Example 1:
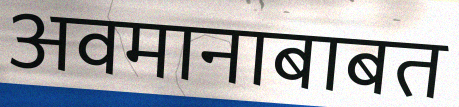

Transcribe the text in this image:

अवमानाबाबत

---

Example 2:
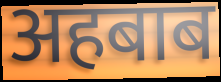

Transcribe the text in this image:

अहबाब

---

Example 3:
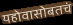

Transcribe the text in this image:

यहोवासोबतचं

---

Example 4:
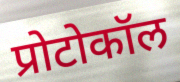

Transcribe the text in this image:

प्रोटोकॉल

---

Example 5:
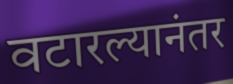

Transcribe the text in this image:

वटारल्यानंतर